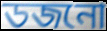
ডজনো